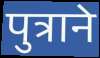
पुत्राने